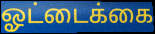
ஓட்டைக்கை